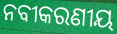
ନବୀକରଣୀୟ